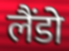
लैंडो